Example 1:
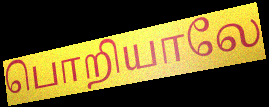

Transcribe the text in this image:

பொறியாலே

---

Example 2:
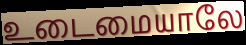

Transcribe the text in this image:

உடைமையாலே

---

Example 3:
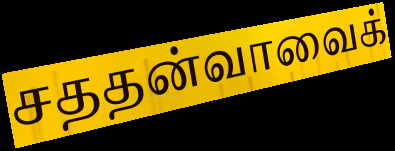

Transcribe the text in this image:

சததன்வாவைக்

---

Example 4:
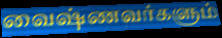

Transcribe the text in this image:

வைஷ்ணவர்களும்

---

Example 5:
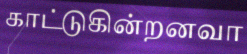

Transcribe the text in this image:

காட்டுகின்றனவா